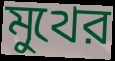
মুথের